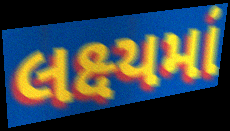
લક્ષ્યમાં